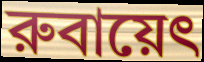
রুবায়েৎ